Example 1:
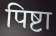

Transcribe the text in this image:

पिष्टा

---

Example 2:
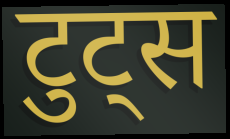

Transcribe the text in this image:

टुट्स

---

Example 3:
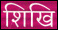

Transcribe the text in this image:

शिखि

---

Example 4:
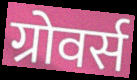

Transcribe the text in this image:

ग्रोवर्स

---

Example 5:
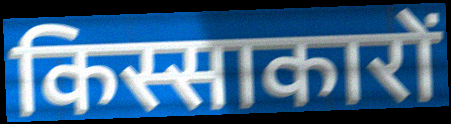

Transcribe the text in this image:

किस्साकारों